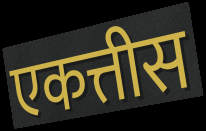
एकत्तीस